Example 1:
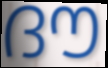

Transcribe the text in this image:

ദൗ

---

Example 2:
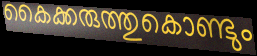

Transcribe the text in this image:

കൈക്കരുത്തുകൊണ്ടും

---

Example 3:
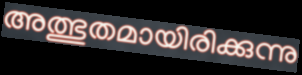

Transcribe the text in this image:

അത്ഭുതമായിരിക്കുന്നു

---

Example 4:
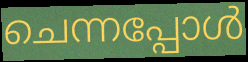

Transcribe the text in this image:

ചെന്നപ്പോൾ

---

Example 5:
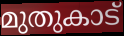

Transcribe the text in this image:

മുതുകാട്